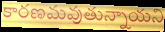
కారణమవుతున్నాయని